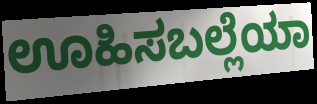
ಊಹಿಸಬಲ್ಲೆಯಾ